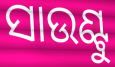
ସାଉଣ୍ଟୁ